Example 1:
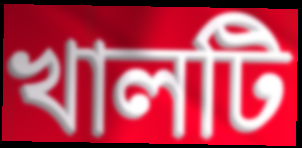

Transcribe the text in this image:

খালটি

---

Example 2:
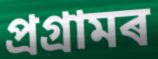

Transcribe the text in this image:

প্ৰগ্ৰামৰ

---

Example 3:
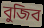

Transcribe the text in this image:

বুজিব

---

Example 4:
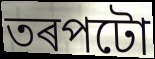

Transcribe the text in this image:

তৰপটো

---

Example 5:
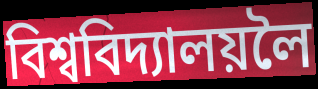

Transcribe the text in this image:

বিশ্ববিদ্যালয়লৈ